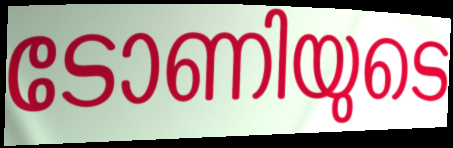
ടോണിയുടെ